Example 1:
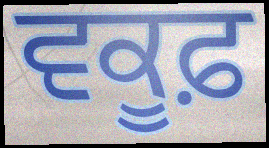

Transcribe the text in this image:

ਵਕੂਫ਼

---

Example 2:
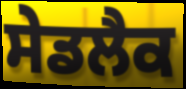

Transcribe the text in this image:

ਸੇਡਲੈਕ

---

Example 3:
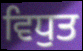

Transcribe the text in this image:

ਵਿਧੁਤ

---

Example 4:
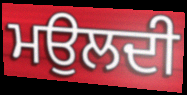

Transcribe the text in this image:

ਮਉਲਦੀ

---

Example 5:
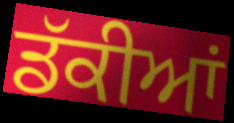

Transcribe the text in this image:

ਡੱਕੀਆਂ